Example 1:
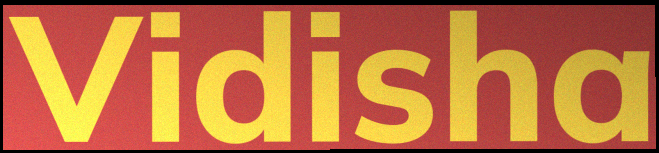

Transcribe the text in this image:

Vidisha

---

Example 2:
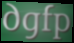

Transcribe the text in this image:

dgfp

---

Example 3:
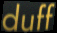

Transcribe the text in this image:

duff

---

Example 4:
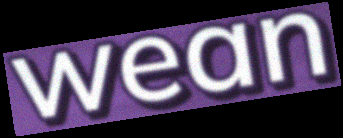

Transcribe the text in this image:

wean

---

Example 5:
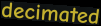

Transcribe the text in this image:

decimated